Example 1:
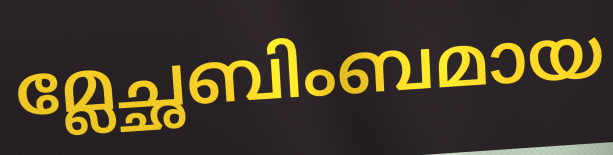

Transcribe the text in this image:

മ്ലേച്ഛബിംബമായ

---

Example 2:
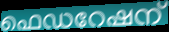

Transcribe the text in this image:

ഫെഡറേഷന്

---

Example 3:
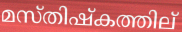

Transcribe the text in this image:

മസ്തിഷ്കത്തില്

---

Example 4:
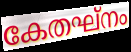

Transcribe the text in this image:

കേതഘ്നം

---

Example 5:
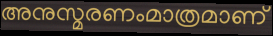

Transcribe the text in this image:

അനുസ്മരണംമാത്രമാണ്